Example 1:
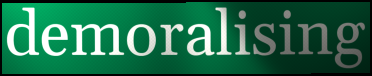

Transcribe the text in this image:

demoralising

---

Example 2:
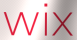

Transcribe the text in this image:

wix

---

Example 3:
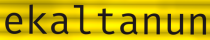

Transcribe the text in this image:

ekaltanun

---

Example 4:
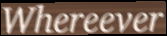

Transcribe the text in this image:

Whereever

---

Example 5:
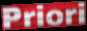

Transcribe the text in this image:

Priori